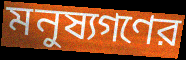
মনুষ্যগণের